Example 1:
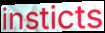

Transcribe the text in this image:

insticts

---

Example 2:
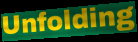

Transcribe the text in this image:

Unfolding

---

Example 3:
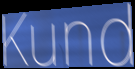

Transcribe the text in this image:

Kund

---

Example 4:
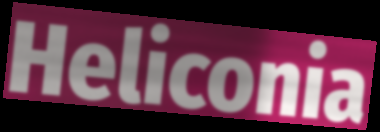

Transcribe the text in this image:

Heliconia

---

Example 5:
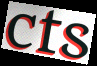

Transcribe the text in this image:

cts